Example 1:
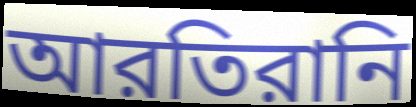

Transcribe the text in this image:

আরতিরানি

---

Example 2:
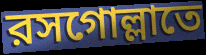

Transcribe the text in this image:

রসগোল্লাতে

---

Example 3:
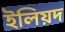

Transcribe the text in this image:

ইলিয়দ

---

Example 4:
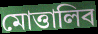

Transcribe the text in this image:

মোত্তালিব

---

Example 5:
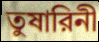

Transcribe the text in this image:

তুষারিনী